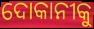
ଦୋକାନୀକୁ